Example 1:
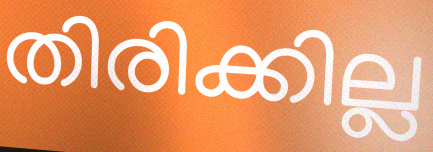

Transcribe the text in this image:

തിരിക്കില്ല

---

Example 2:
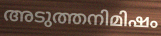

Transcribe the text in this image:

അടുത്തനിമിഷം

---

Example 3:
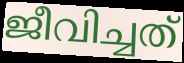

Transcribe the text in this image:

ജീവിച്ചത്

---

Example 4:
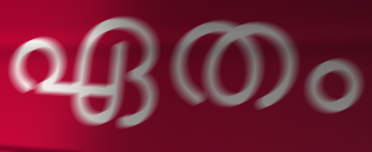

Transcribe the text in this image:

ഏതം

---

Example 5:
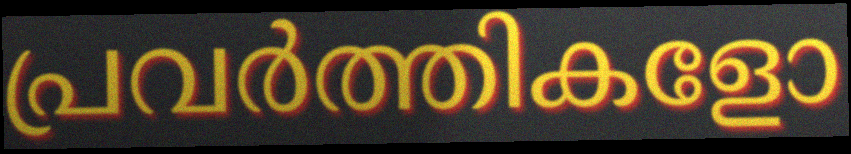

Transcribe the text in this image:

പ്രവർത്തികളോ